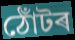
ঠোঁটৰ